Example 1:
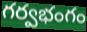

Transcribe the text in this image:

గర్వభంగం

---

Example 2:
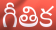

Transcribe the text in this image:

గీతిక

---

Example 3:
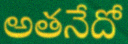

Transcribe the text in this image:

అతనేదో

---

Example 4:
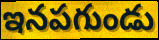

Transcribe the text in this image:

ఇనపగుండు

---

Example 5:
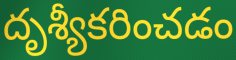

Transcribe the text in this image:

దృశ్యీకరించడం